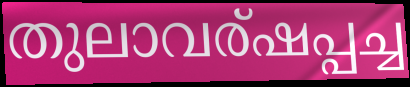
തുലാവര്ഷപ്പച്ച